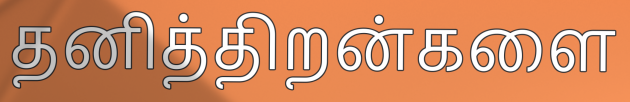
தனித்திறன்களை